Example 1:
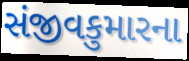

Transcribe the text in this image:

સંજીવકુમારના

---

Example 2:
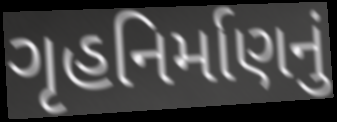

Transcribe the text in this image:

ગૃહનિર્માણનું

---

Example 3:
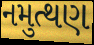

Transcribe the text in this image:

નમુત્થણ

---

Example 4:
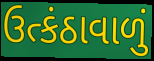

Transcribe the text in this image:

ઉત્કંઠાવાળું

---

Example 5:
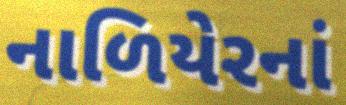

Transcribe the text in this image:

નાળિયેરનાં